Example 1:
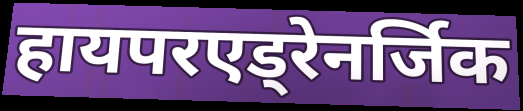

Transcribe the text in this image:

हायपरएड्रेनर्जिक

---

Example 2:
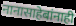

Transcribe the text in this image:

नानासाहेबांनाही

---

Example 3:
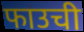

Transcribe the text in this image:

फाउची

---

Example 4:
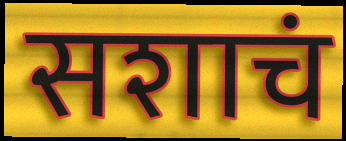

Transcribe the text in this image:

सशाचं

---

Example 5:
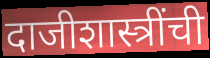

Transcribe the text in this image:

दाजीशास्त्रींची